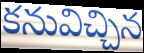
కనువిచ్చిన